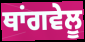
ਥਾਂਗਵੇਲੂ